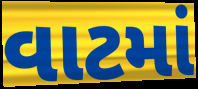
વાટમાં